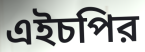
এইচপির